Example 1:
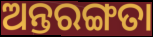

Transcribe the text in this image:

ଅନ୍ତରଙ୍ଗତା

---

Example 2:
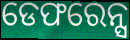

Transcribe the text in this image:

ଡେଫରେନ୍ସ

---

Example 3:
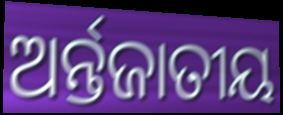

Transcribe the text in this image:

ଅର୍ନ୍ତଜାତୀୟ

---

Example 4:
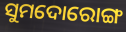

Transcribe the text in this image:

ସୁମଦୋରୋଙ୍ଗ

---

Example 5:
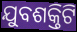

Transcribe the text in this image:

ଯୁବଶକ୍ତିଟି